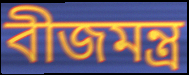
বীজমন্ত্ৰ